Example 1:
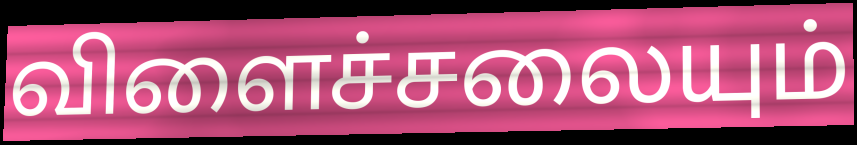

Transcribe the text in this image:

விளைச்சலையும்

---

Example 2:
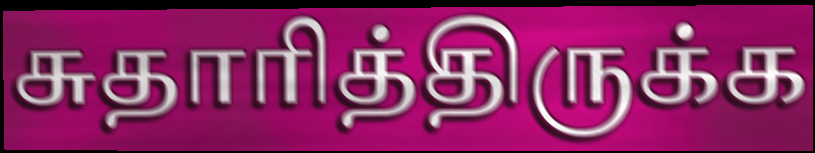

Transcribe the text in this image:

சுதாரித்திருக்க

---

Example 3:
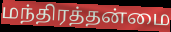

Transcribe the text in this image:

மந்திரத்தன்மை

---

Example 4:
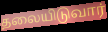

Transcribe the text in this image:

தலையிடுவார்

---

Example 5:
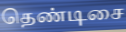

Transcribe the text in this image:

தெண்டிசை